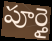
పూర్తై